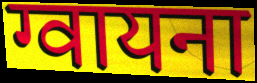
ग्वायना